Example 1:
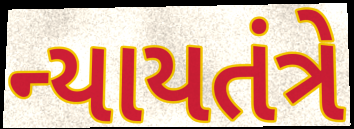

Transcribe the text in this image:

ન્યાયતંત્રે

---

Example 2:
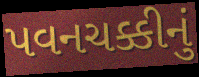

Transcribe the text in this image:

પવનચક્કીનું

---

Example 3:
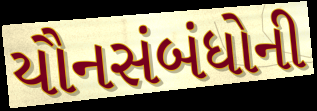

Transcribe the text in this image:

યૌનસંબંધોની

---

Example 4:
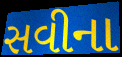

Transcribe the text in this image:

સવીના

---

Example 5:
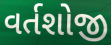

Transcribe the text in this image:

વર્તશોજી